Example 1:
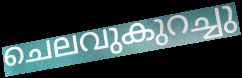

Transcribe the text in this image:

ചെലവുകുറച്ചു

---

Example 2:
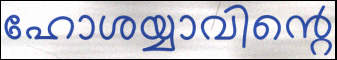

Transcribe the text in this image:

ഹോശയ്യാവിന്റെ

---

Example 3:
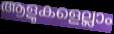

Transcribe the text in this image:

ആളുകളെല്ലാം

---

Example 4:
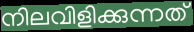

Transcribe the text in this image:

നിലവിളിക്കുന്നത്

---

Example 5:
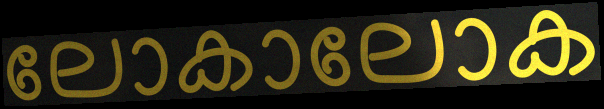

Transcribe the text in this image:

ലോകാലോക